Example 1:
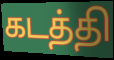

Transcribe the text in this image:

கடத்தி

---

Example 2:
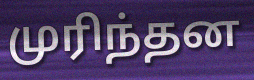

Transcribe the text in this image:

முரிந்தன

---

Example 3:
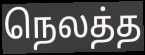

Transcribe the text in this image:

நெலத்த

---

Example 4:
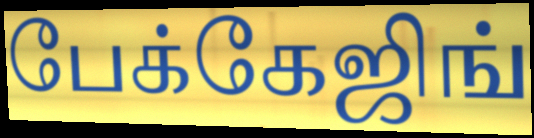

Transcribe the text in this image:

பேக்கேஜிங்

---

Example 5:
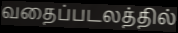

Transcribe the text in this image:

வதைப்படலத்தில்